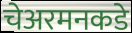
चेअरमनकडे